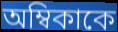
অম্বিকাকে